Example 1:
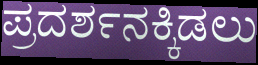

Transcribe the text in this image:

ಪ್ರದರ್ಶನಕ್ಕಿಡಲು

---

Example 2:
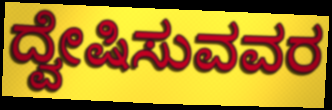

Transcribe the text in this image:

ದ್ವೇಷಿಸುವವರ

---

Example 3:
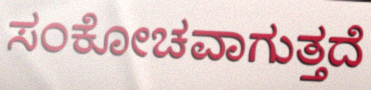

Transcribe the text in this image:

ಸಂಕೋಚವಾಗುತ್ತದೆ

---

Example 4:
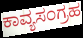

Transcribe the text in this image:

ಕಾವ್ಯಸಂಗ್ರಹ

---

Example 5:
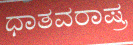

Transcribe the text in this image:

ಧಾತವರಾಷ್ರ